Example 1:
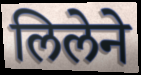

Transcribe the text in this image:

लिलेने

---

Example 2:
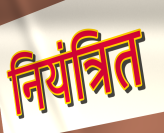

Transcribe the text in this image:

नियंत्रित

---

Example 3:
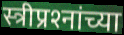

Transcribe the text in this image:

स्त्रीप्रश्नांच्या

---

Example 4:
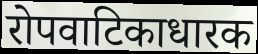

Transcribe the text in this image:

रोपवाटिकाधारक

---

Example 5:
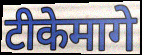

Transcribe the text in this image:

टीकेमागे